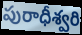
పురాధీశ్వరి